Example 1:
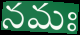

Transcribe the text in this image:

నమః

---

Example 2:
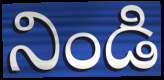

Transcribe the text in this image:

నిండి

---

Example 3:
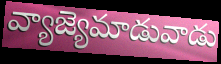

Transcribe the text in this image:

వ్యాజ్యెమాడువాడు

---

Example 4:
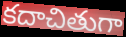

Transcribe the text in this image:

కదాచితుగా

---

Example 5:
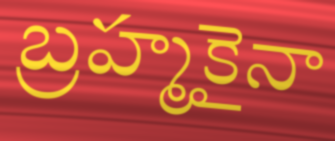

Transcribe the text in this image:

బ్రహ్మకైనా